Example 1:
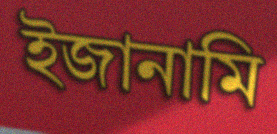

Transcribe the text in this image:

ইজানামি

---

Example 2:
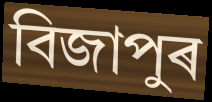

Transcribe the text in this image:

বিজাপুৰ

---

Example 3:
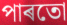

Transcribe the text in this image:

পাৰতো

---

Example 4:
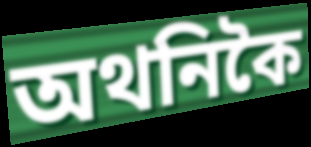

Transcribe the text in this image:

অথনিকৈ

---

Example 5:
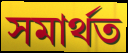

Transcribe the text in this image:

সমাৰ্থত